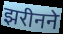
झरीनने